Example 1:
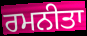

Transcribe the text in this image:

ਰਮਨੀਤਾ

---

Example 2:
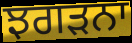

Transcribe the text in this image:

ਝਗੜਨਾ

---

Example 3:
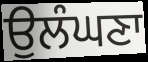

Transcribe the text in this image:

ਉਲੰਘਣਾ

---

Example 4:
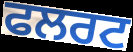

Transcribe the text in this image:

ਫਲਰਟ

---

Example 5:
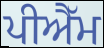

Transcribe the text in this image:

ਪੀਐੱਮ